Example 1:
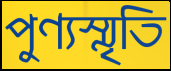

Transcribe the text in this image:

পুণ্যস্মৃতি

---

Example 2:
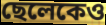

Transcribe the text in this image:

ছেলেকেও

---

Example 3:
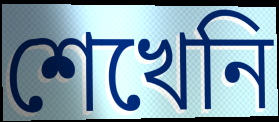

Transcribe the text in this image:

শেখেনি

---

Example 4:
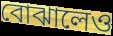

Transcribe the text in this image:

বোঝালেও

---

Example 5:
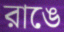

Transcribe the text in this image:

রাঙে